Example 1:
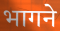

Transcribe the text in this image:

भागने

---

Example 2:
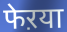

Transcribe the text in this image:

फेऱया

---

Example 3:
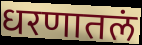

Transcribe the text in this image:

धरणातलं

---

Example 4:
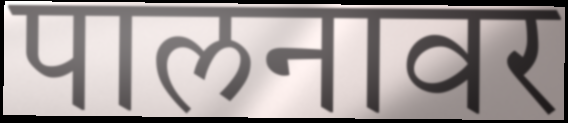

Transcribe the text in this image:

पालनावर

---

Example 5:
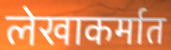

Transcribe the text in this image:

लेखाकर्मात